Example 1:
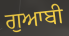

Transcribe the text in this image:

ਗੁਆਬੀ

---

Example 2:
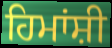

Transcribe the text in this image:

ਹਿਮਾਂਸ਼ੀ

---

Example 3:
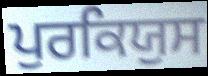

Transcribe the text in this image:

ਪੁਰਕਿਯੁਸ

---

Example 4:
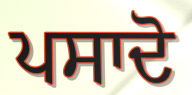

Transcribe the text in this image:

ਪਸਾਦੋ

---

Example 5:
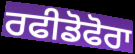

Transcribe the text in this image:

ਰਫੀਡੋਫੋਰਾ